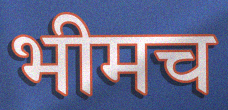
भीमच